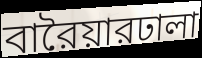
বারৈয়ারঢালা